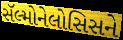
સૅલ્મોનેલોસિસને